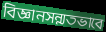
বিজ্ঞানসন্মতভাবে